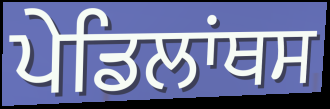
ਪੇਡਿਲਾਂਥਸ